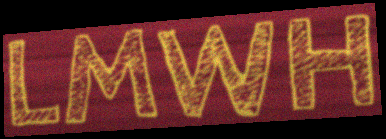
LMWH